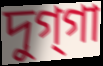
দুগ্‌গা